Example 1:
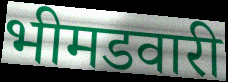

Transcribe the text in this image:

भीमडवारी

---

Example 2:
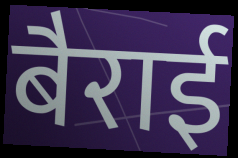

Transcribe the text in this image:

बैराई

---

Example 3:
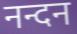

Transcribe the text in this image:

नन्‍दन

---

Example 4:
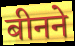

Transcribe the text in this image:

बीनने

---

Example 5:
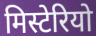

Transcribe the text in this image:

मिस्टेरियो